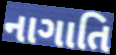
નાગાતિ